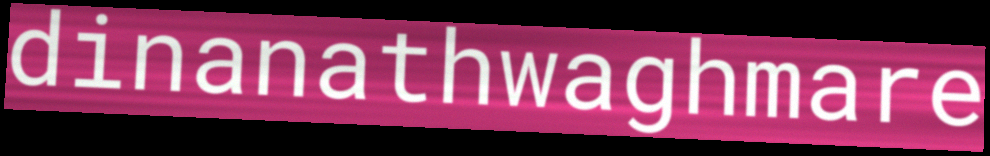
dinanathwaghmare